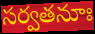
సర్వతనూః